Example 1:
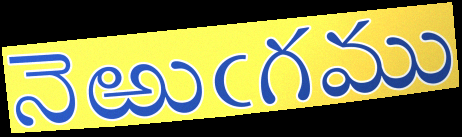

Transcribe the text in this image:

నెఱుఁగము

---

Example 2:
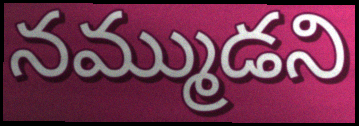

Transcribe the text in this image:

నమ్ముడని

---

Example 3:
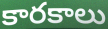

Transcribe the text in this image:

కారకాలు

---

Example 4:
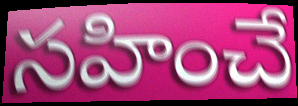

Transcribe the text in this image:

సహించే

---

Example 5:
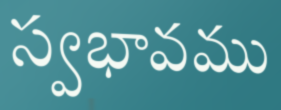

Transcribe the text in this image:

స్వభావము